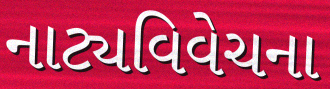
નાટ્યવિવેચના